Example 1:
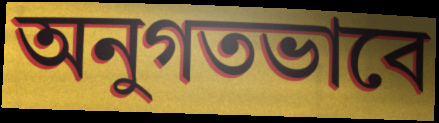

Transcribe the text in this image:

অনুগতভাবে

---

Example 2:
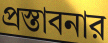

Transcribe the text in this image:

প্রস্তাবনার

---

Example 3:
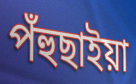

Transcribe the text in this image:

পঁহুছাইয়া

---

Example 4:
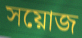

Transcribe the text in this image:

সয়োজ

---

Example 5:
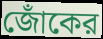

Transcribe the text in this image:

জোঁকের